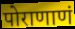
पोराणाणं